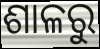
ଶାଳରୁ